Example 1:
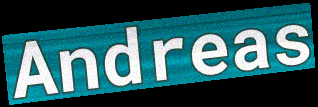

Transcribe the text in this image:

Andreas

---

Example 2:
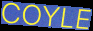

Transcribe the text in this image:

COYLE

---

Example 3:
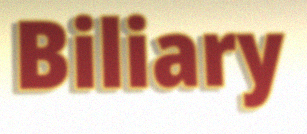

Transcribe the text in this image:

Biliary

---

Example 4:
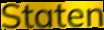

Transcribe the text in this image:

Staten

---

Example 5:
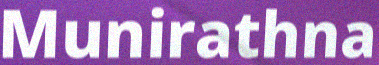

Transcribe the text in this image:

Munirathna